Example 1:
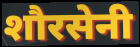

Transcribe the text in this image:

शौरसेनी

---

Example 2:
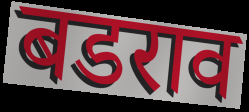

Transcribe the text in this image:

बडराव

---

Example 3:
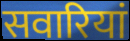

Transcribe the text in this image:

सवारियां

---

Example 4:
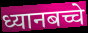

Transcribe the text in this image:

ध्यानबच्चे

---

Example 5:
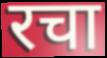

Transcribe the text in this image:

रचा